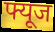
फ्यूज